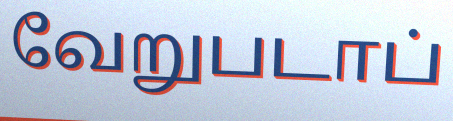
வேறுபடாப்